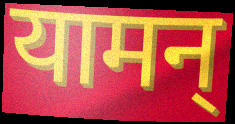
यामन्